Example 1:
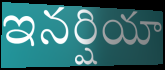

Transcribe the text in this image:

ఇనర్షియా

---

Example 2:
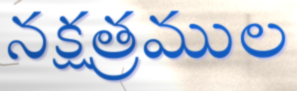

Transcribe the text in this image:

నక్షత్రముల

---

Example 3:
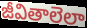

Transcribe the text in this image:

జీవితాలెలా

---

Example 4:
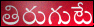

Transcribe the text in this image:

తిరుగుటే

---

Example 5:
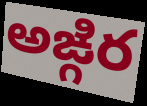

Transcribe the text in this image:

అఙ్గిర